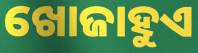
ଖୋଜାହୁଏ